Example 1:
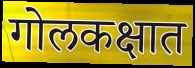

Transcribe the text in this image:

गोलकक्षात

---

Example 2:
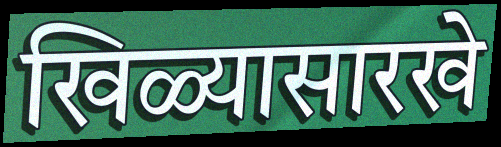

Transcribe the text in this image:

खिळ्यासारखे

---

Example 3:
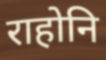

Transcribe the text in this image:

राहोनि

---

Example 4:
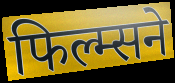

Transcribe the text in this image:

फिल्म्सने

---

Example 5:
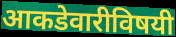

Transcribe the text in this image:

आकडेवारीविषयी